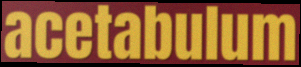
acetabulum